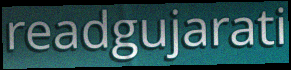
readgujarati